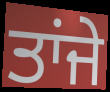
ਤਾਂਜੇ